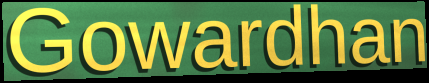
Gowardhan